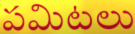
పమిటలు